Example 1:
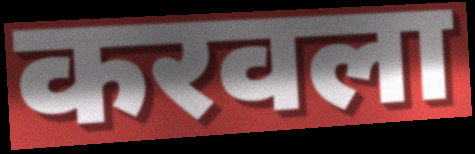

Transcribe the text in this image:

करवला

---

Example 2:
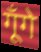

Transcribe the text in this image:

गूँगे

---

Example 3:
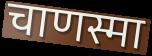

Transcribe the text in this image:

चाणस्मा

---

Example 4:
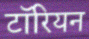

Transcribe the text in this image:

टॉरियन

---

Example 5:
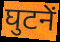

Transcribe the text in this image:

घुटनें